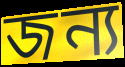
জন্য